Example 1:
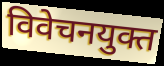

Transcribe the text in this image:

विवेचनयुक्त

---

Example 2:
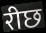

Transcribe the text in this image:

रीछ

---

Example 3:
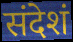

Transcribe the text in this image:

संदेशं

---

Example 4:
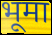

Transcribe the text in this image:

भूमा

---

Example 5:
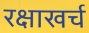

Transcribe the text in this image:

रक्षाखर्च